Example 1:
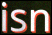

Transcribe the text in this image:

isn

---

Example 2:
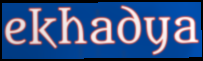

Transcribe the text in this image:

ekhadya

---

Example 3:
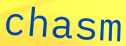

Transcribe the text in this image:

chasm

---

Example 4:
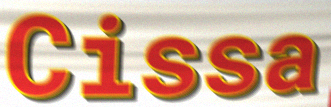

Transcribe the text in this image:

Cissa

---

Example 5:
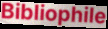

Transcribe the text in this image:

Bibliophile